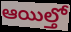
ఆయిల్తో